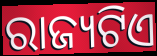
ରାଜ୍ୟଟିଏ